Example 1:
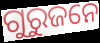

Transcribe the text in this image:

ଗୁରୁଜନେ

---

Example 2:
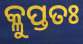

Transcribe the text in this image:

କ୍ଳୁପ୍ତତଃ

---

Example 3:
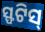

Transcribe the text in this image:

ସ୍ଫଟିସ୍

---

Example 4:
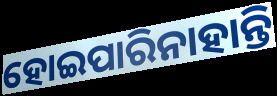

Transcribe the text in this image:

ହୋଇପାରିନାହାନ୍ତି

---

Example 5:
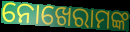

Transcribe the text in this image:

ନୋଖେରାମଙ୍କ